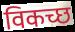
विकच्छ